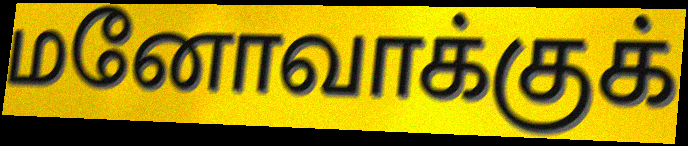
மனோவாக்குக்